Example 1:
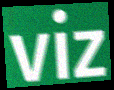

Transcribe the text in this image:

viz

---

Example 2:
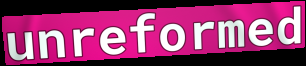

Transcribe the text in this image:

unreformed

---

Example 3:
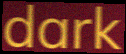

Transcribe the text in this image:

dark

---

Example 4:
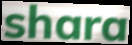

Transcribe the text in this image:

shara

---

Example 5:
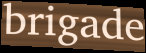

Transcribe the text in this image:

brigade